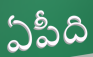
ఏపీది